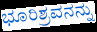
ಭೂರಿಶ್ರವನನ್ನು